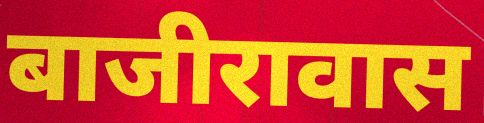
बाजीरावास